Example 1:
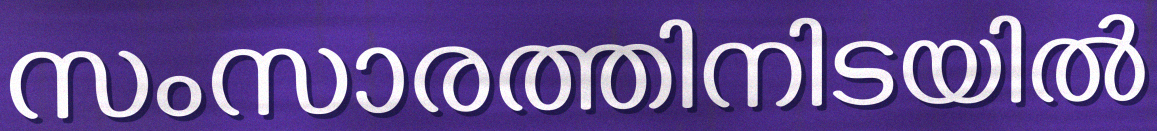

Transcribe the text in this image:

സംസാരത്തിനിടയിൽ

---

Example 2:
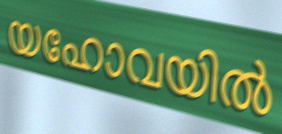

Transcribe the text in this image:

യഹോവയിൽ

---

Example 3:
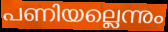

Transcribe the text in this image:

പണിയല്ലെന്നും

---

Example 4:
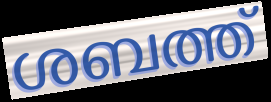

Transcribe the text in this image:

ശബത്ത്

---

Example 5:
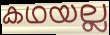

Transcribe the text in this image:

കഥയല്ല